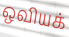
ஒவியக்